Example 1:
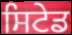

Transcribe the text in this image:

ਸਿਟੇਡ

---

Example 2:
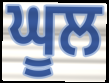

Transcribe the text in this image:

ਘੂਲ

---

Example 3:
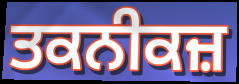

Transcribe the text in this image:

ਤਕਨੀਕਜ਼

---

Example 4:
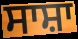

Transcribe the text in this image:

ਸਾਸ਼ਾ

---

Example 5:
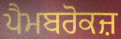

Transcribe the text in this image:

ਪੈਮਬਰੋਕਜ਼